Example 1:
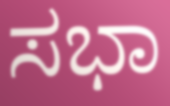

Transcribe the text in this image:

ಸಭಾ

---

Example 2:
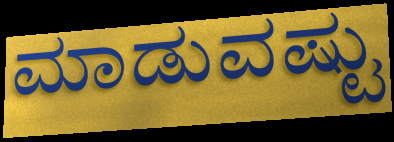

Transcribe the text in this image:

ಮಾಡುವಷ್ಟು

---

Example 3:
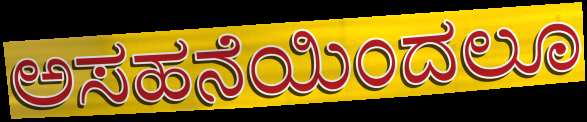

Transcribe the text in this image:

ಅಸಹನೆಯಿಂದಲೂ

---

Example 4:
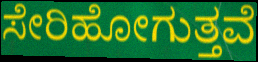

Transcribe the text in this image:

ಸೇರಿಹೋಗುತ್ತವೆ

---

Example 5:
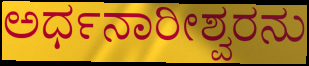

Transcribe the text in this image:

ಅರ್ಧನಾರೀಶ್ವರನು